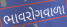
ભાવરોગવાળા